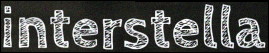
interstella